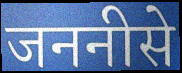
जननीसे